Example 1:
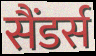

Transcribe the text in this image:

सैंडर्स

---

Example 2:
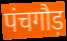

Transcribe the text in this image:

पंचगौड़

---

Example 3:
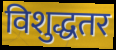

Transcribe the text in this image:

विशुद्धतर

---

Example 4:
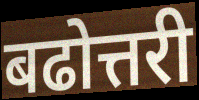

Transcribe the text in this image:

बढोत्तरी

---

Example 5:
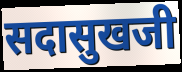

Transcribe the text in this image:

सदासुखजी